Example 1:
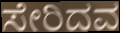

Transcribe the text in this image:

ಸೇರಿದವ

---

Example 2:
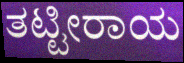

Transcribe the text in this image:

ತಟ್ಟೀರಾಯ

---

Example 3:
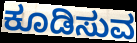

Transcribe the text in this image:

ಕೂಡಿಸುವ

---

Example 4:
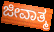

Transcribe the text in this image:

ಜೀವಾತ್ಮ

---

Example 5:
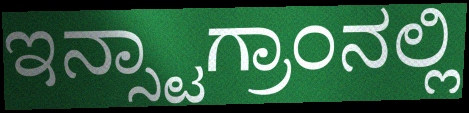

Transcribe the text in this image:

ಇನ್ಸ್ಟಾಗ್ರಾಂನಲ್ಲಿ